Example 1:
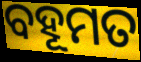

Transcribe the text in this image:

ବହୂମତ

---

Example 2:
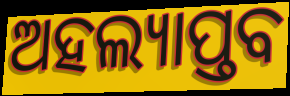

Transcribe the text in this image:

ଅହଲ୍ୟାପ୍ତବ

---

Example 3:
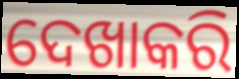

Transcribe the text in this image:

ଦେଖାକରି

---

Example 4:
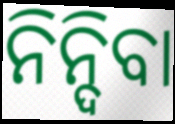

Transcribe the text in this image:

ନିନ୍ଦିବା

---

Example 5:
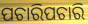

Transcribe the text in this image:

ପଚାରିପଚାରି